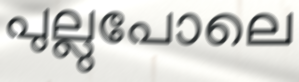
പുല്ലുപോലെ